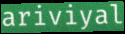
ariviyal